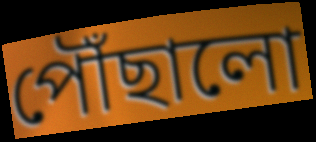
পৌঁছালো